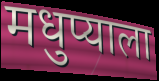
मधुप्याला